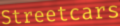
Streetcars